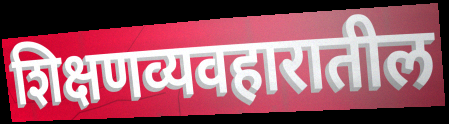
शिक्षणव्यवहारातील